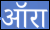
ऑरा